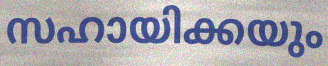
സഹായിക്കയും